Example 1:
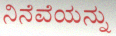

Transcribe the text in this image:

ನಿನೆವೆಯನ್ನು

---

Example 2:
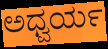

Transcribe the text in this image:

ಅಧ್ವರ್ಯ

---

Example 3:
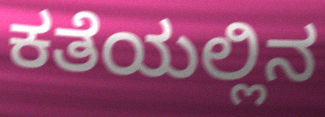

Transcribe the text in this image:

ಕತೆಯಲ್ಲಿನ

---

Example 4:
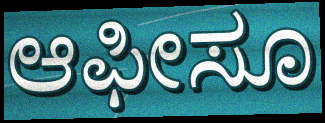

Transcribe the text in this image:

ಆಫೀಸೂ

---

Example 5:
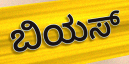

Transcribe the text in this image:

ಬಿಯಸ್